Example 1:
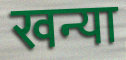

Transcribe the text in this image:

खन्या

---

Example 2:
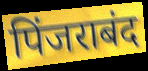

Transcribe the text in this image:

पिंजराबंद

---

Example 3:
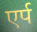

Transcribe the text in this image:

एर्प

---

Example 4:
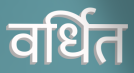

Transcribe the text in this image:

वर्धित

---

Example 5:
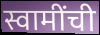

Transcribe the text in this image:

स्वामींची